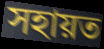
সহায়ত